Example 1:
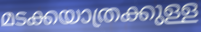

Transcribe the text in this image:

മടക്കയാത്രക്കുള്ള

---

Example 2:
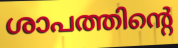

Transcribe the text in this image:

ശാപത്തിന്റെ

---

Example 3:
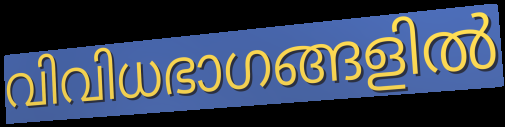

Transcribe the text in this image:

വിവിധഭാഗങ്ങളിൽ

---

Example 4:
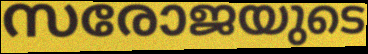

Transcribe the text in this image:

സരോജയുടെ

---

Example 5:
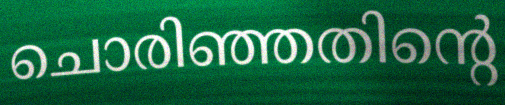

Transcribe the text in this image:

ചൊരിഞ്ഞതിന്റെ